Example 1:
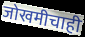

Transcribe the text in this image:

जोखमीचाही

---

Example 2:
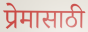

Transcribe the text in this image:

प्रेमासाठी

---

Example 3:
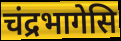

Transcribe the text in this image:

चंद्रभागेसि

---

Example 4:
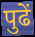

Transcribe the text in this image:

पुढें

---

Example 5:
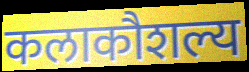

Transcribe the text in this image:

कलाकौशल्य